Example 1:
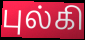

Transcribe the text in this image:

புல்கி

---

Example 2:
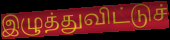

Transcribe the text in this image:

இழுத்துவிட்டுச்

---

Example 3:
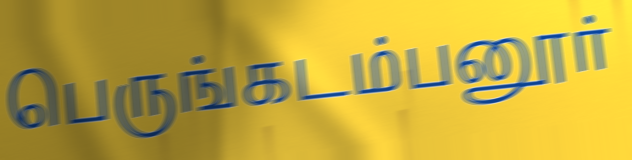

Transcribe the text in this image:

பெருங்கடம்பனூர்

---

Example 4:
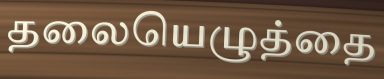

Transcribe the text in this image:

தலையெழுத்தை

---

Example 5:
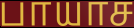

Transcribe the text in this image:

பாயாச